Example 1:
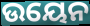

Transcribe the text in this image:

ଉୟେନ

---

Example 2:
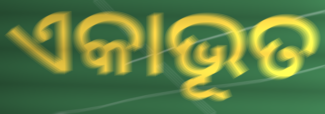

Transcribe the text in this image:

ଏକାଭୂତ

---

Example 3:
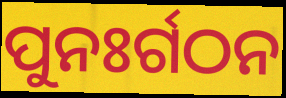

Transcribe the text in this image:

ପୁନଃର୍ଗଠନ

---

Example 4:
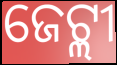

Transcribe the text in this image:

ଜେଟ୍ଲୀ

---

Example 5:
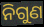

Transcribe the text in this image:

ନିଗୁଣ